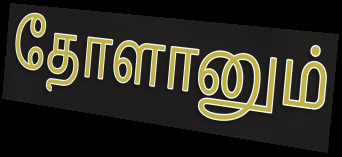
தோளானும்